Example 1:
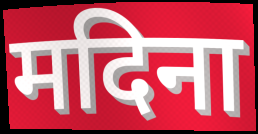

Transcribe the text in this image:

मदिना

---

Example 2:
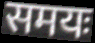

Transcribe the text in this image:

समयः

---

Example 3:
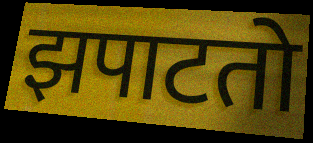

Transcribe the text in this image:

झपाटतो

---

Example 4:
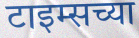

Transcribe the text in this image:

टाइम्सच्या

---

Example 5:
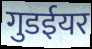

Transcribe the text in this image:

गुडईयर